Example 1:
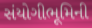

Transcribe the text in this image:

સંયોગીભૂમિની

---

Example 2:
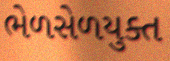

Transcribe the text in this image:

ભેળસેળયુક્ત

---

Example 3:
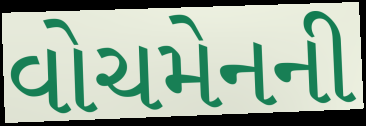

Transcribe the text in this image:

વોચમેનની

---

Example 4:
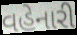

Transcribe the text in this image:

વહેનારી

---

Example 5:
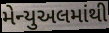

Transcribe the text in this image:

મેન્યુઅલમાંથી